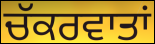
ਚੱਕਰਵਾਤਾਂ